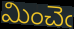
మించెఁ